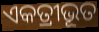
ଏକତ୍ରୀଭୂତ